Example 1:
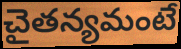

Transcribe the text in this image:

చైతన్యమంటే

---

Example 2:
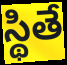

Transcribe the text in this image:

స్థితే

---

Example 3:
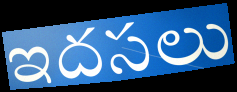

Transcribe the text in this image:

ఇదసలు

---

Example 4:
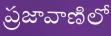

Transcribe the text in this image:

ప్రజావాణిలో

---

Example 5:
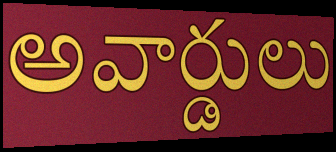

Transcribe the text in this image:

అవార్డులు